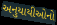
અનુયાયીઓનો